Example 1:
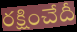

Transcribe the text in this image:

రక్షించేదీ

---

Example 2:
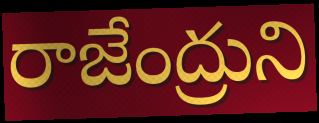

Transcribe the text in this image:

రాజేంద్రుని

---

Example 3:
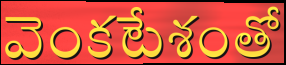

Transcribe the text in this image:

వెంకటేశంతో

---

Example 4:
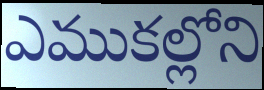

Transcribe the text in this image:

ఎముకల్లోని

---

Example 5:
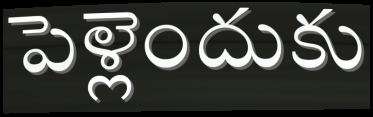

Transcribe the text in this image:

పెళ్లెందుకు